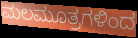
ಮಲಮೂತ್ರಗಳಿಂದ